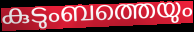
കുടുംബത്തെയും